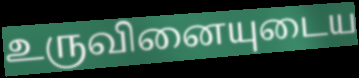
உருவினையுடைய